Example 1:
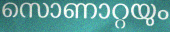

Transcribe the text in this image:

സൊണാറ്റയും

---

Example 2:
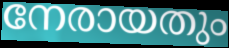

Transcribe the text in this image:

നേരായതും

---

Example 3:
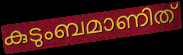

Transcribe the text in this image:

കുടുംബമാണിത്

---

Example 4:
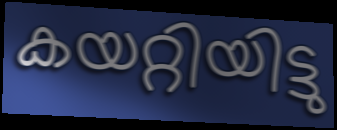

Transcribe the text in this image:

കയറ്റിയിട്ടു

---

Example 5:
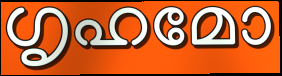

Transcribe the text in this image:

ഗൃഹമോ